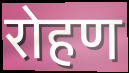
रोहण